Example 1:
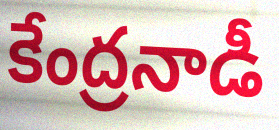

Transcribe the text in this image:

కేంద్రనాడీ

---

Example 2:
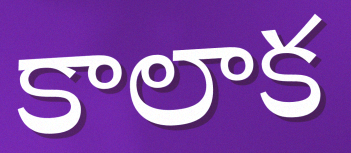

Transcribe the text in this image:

కాలాక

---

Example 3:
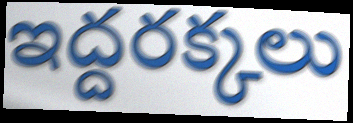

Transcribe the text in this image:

ఇద్దరక్కలు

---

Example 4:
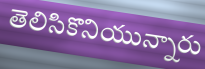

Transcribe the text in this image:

తెలిసికొనియున్నారు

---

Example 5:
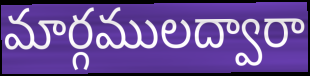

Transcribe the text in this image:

మార్గములద్వారా